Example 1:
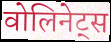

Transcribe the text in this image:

वोलिनेट्स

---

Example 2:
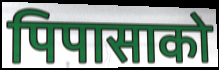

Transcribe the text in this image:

पिपासाको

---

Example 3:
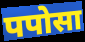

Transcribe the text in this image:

पपोसा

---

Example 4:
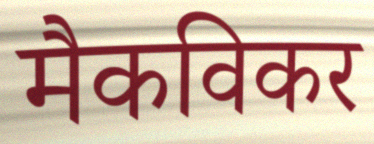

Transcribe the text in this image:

मैकविकर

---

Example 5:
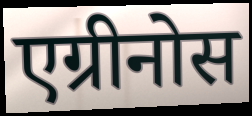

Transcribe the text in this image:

एग्रीनोस